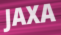
JAXA